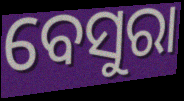
ବେସୁରା